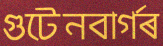
গুটেনবাৰ্গৰ